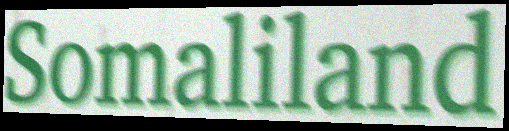
Somaliland